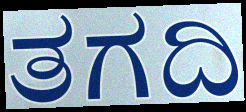
ತಗದಿ